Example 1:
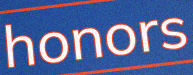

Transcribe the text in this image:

honors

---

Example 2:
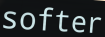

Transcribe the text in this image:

softer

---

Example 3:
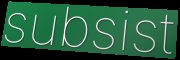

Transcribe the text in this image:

subsist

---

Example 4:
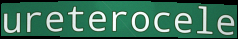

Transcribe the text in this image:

ureterocele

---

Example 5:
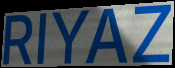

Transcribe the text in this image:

RIYAZ